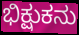
ಭಿಕ್ಷುಕನು